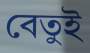
বেতুই